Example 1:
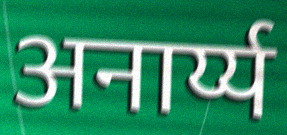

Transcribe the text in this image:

अनार्य्य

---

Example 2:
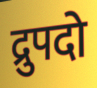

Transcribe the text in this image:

द्रुपदो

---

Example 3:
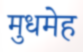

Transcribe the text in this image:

मुधमेह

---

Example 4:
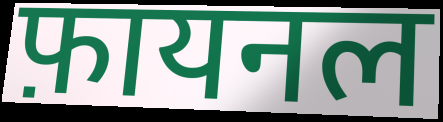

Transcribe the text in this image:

फ़ायनल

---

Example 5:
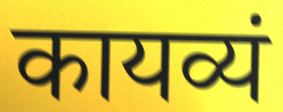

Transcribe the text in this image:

कायव्यं